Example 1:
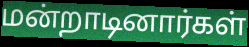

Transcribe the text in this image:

மன்றாடினார்கள்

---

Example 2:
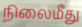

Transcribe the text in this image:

நிலைமீது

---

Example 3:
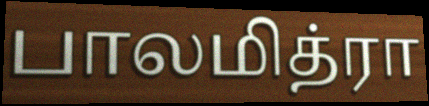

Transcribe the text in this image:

பாலமித்ரா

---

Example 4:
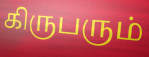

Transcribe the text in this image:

கிருபரும்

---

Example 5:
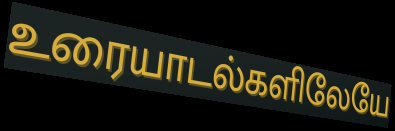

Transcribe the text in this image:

உரையாடல்களிலேயே